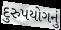
દુરુપયોગનું